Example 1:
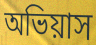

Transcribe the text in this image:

অভিয়াস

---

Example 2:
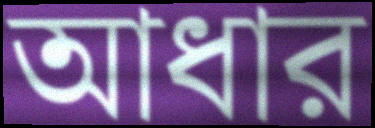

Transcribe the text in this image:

আধার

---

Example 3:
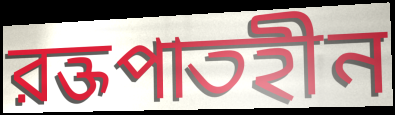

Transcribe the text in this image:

রক্তপাতহীন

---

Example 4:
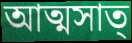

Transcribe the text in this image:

আত্মসাত্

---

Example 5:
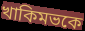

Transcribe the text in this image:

খাকিমভকে